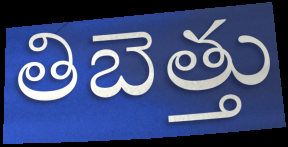
తిబెత్తు